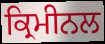
ਕ੍ਰਿਮੀਨਲ